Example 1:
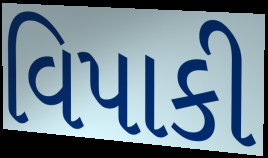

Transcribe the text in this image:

વિપાકી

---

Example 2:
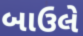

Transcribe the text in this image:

બાઉલે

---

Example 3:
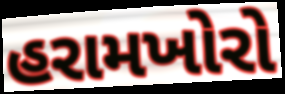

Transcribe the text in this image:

હરામખોરો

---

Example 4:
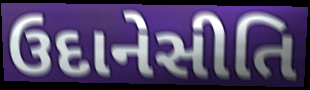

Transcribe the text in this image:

ઉદાનેસીતિ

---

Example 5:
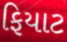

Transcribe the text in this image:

ફિયાટ